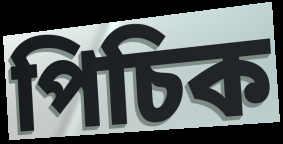
পিচিক